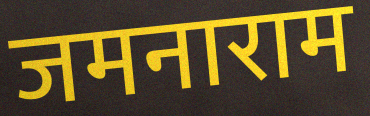
जमनाराम